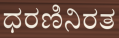
ಧರಣಿನಿರತ